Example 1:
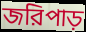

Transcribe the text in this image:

জরিপাড়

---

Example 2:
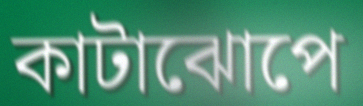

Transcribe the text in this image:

কাটাঝোপে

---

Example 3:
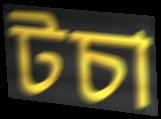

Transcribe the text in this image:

টচা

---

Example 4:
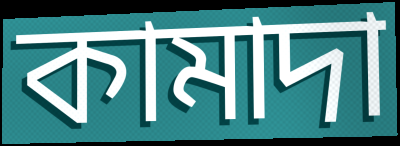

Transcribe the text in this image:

কামাদা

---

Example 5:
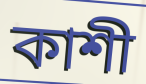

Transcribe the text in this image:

কাশী